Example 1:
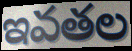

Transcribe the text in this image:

ఇవతల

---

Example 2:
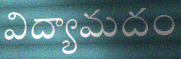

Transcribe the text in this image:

విద్యామదం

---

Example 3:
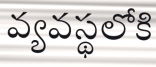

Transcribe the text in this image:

వ్యవస్థలోకి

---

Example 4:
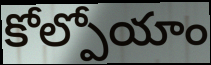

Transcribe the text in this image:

కోల్పోయాం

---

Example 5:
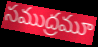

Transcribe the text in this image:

సముద్రమూ